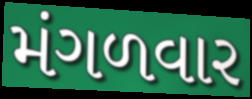
મંગળવાર